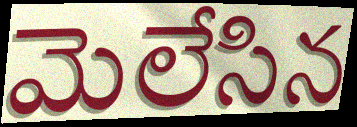
మెలేసిన